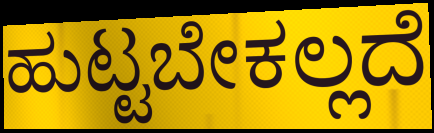
ಹುಟ್ಟಬೇಕಲ್ಲದೆ